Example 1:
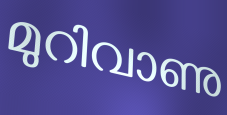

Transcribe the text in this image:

മുറിവാണു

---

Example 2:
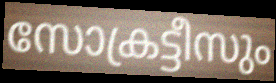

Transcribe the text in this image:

സോക്രട്ടീസും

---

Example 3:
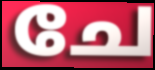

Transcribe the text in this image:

ചേ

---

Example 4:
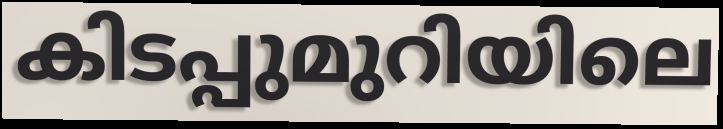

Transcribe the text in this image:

കിടപ്പുമുറിയിലെ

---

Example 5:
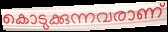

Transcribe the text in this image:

കൊടുക്കുന്നവരാണ്